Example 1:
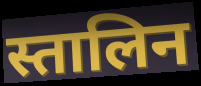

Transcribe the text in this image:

स्तालिन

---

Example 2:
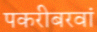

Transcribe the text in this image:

पकरीबरवां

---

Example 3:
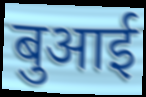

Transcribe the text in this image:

बुआई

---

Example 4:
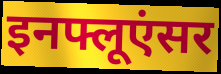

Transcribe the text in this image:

इनफ्लूएंसर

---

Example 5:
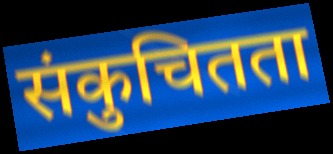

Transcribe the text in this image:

संकुचितता